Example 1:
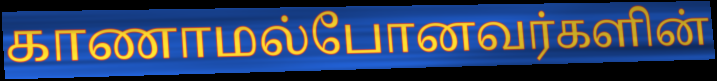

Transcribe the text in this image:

காணாமல்போனவர்களின்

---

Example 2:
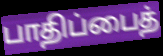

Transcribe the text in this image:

பாதிப்பைத்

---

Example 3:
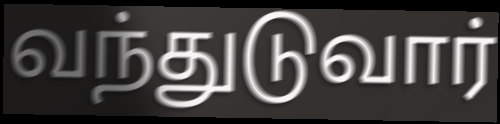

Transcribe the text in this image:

வந்துடுவார்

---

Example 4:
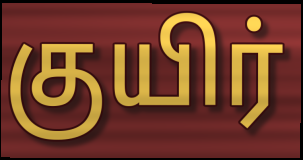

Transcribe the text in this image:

குயிர்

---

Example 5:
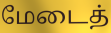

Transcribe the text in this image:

மேடைத்